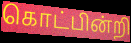
கொட்பின்றி